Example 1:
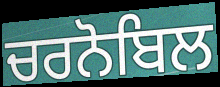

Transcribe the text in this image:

ਚਰਨੋਬਿਲ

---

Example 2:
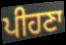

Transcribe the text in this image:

ਪੀਹਣਾ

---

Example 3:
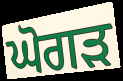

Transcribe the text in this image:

ਘੋਗੜ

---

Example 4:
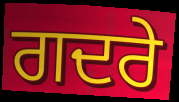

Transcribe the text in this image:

ਗਦਰੇ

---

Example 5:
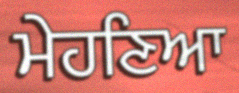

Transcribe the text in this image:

ਮੇਹਣਿਆ